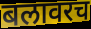
बलावरच